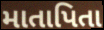
માતાપિતા